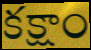
కక్షాం